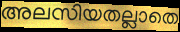
അലസിയതല്ലാതെ